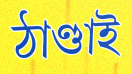
ঠাণ্ডাই